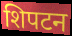
शिपटन